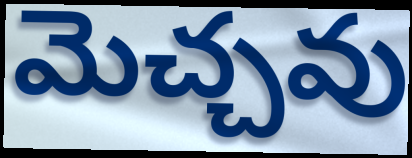
మెచ్చవు